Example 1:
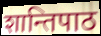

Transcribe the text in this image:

शान्तिपाठ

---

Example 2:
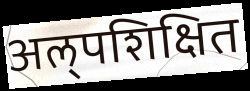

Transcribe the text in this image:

अल्पशिक्षित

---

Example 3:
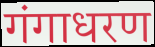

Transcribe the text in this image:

गंगाधरण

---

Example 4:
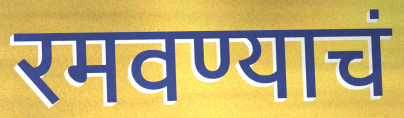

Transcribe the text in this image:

रमवण्याचं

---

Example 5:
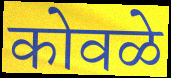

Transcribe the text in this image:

कोवळे